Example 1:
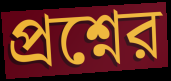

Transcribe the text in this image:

প্রশ্নের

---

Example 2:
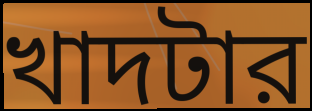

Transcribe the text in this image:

খাদটার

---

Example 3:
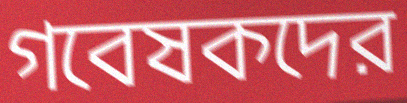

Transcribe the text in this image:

গবেষকদের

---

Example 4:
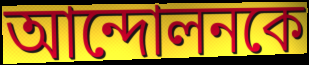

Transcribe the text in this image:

আন্দোলনকে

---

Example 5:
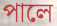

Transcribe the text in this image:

পালে